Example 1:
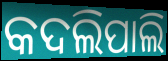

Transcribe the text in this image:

କଦଲିପାଲି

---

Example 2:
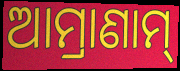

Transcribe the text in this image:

ଆମ୍ରାଣାମ୍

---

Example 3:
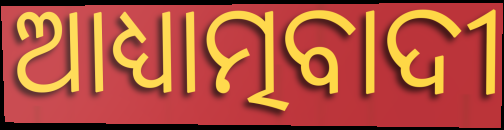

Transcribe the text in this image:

ଆଧ୍ୟାତ୍ମବାଦୀ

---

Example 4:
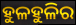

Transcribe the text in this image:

ହୁଳହୁଳିର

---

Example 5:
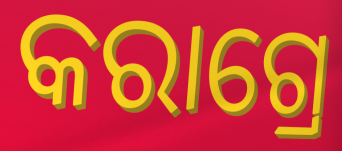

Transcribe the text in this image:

କରାଗ୍ରେ